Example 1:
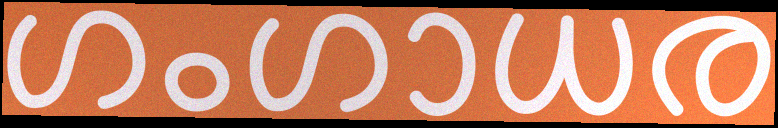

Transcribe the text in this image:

ഗംഗാധര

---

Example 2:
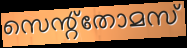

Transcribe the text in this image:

സെന്റ്തോമസ്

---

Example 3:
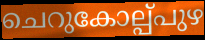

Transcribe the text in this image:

ചെറുകോല്പ്പുഴ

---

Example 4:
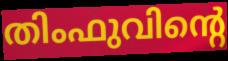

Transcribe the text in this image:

തിംഫുവിന്റെ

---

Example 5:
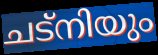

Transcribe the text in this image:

ചട്നിയും